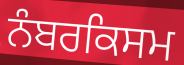
ਨੰਬਰਕਿਸਮ